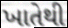
ખાતેથી